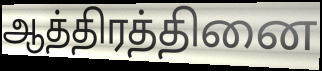
ஆத்திரத்தினை